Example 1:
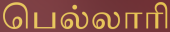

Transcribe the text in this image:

பெல்லாரி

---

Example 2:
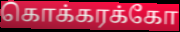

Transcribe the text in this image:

கொக்கரக்கோ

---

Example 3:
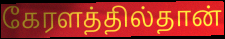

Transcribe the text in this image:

கேரளத்தில்தான்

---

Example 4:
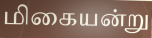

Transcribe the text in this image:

மிகையன்று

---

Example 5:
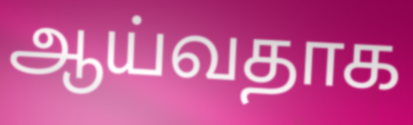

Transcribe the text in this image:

ஆய்வதாக